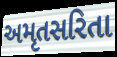
અમૃતસરિતા